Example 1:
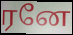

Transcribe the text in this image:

ரனே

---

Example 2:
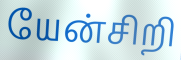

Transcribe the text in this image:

யேன்சிறி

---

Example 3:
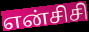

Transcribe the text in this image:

என்சிசி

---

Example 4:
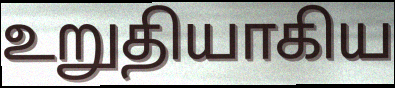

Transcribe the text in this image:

உறுதியாகிய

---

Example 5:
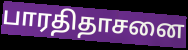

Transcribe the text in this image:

பாரதிதாசனை